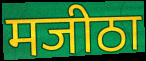
मजीठा